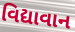
વિદ્યાવાન